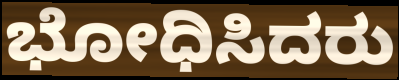
ಭೋಧಿಸಿದರು